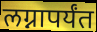
लग्नापर्यंत